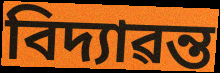
বিদ্যাৱন্ত